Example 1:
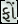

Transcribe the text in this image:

ફોં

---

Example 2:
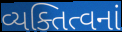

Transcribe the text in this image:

વ્યક્તિત્વનાં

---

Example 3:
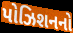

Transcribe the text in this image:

પોઝિશનનો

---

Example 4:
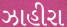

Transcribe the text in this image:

ઝાહીરા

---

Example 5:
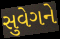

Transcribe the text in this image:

સુવેગને